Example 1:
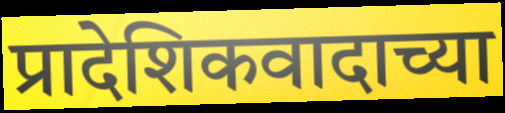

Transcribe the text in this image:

प्रादेशिकवादाच्या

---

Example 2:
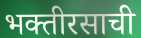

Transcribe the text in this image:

भक्तीरसाची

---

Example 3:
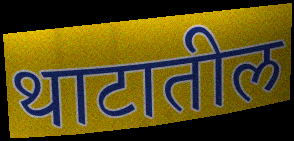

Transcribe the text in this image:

थाटातील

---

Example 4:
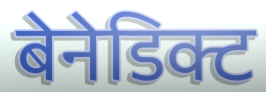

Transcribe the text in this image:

बेनेडिक्ट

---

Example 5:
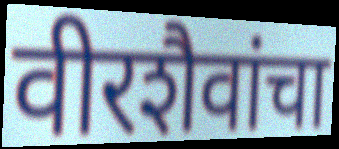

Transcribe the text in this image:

वीरशैवांचा